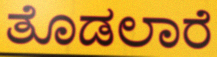
ತೊಡಲಾರೆ